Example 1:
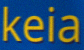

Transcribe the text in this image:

keia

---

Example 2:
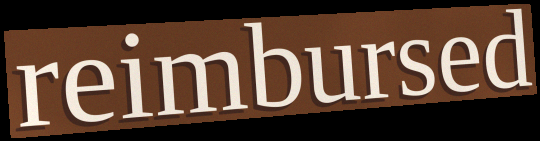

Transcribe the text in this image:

reimbursed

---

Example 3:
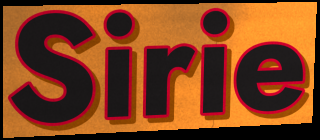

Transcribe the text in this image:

Sirie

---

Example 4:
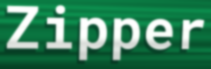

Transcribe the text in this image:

Zipper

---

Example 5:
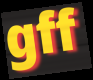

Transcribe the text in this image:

gff